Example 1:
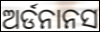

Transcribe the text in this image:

ଅର୍ଡନାନସ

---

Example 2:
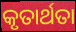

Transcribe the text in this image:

କୃତାର୍ଥତା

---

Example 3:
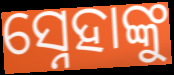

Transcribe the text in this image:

ସ୍ନେହାଙ୍କୁ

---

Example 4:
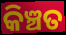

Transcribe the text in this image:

କିଞ୍ଚତ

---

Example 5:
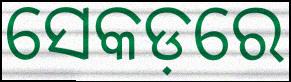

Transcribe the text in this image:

ସେକଡ଼ରେ